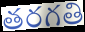
తరగతి